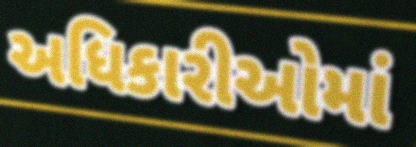
અધિકારીઓમાં